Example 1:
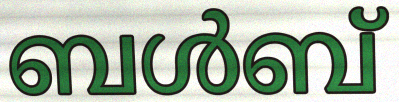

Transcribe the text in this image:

ബൾബ്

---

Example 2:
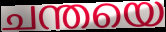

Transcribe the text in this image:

ചന്തയെ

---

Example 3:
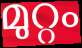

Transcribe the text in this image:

മുറ്റം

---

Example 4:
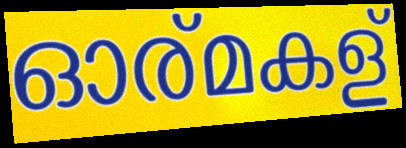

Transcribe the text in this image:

ഓര്മകള്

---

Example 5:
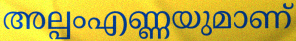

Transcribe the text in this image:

അല്പംഎണ്ണയുമാണ്